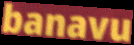
banavu